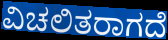
ವಿಚಲಿತರಾಗದೆ